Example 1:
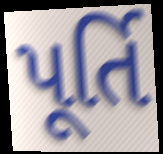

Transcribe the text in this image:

પૂર્તિ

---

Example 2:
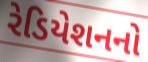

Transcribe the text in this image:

રેડિયેશનનો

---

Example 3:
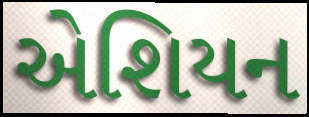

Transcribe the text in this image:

એશિયન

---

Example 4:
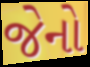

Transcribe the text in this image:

જેનો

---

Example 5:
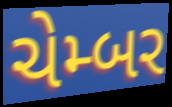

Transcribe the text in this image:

ચેમ્બર